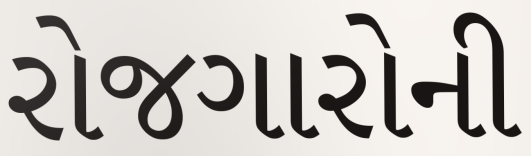
રોજગારોની